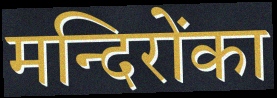
मन्दिरोंका